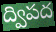
ద్విపద